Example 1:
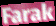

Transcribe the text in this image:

Farak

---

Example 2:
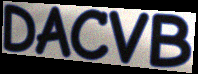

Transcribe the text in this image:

DACVB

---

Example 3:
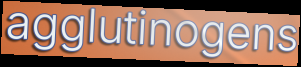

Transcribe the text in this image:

agglutinogens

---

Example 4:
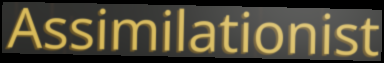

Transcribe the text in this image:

Assimilationist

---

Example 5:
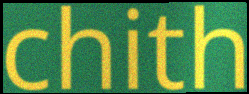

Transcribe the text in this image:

chith